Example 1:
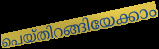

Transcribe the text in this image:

പെയ്തിറങ്ങിയേക്കാം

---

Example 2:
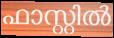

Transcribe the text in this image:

ഫാസ്റ്റിൽ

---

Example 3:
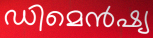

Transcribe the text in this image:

ഡിമെൻഷ്യ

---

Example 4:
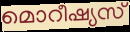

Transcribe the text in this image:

മൊറീഷ്യസ്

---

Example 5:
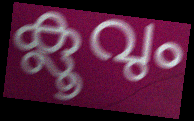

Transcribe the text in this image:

ക്ലൂവും